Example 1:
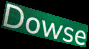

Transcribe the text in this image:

Dowse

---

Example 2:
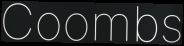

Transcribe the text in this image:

Coombs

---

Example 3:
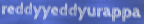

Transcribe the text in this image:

reddyyeddyurappa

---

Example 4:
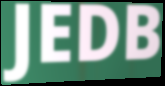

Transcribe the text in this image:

JEDB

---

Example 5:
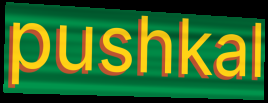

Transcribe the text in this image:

pushkal